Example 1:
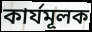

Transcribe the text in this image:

কার্যমূলক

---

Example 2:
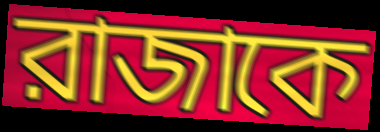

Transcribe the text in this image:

রাজাকে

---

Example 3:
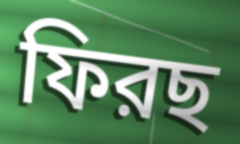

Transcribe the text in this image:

ফিরছ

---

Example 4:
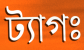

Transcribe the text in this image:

ট্যাগঃ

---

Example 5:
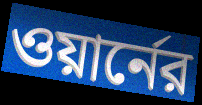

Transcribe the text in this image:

ওয়ার্নের